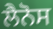
ਲੈਨੋਸ